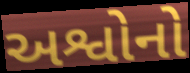
અશ્વોનો